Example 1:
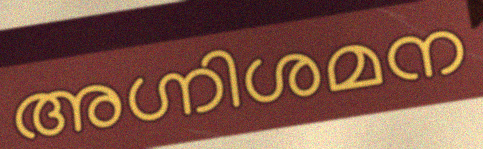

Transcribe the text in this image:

അഗ്നിശമന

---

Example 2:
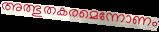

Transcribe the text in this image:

അത്ഭുതകരമെന്നോണം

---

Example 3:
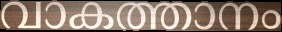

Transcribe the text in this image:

വാകത്താനം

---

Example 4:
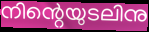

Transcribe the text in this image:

നിന്റെയുടലിനു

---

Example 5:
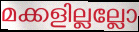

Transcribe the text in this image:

മക്കളില്ലല്ലോ